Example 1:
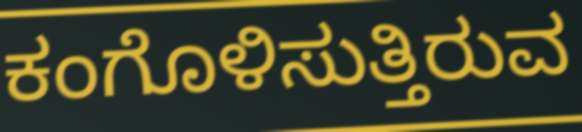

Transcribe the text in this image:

ಕಂಗೊಳಿಸುತ್ತಿರುವ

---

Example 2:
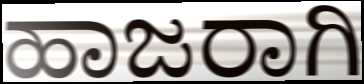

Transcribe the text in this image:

ಹಾಜರಾಗಿ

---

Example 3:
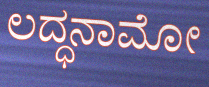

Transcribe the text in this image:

ಲದ್ಧನಾಮೋ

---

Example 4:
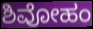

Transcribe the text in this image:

ಶಿವೋಹಂ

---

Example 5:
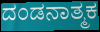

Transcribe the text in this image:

ದಂಡನಾತ್ಮಕ